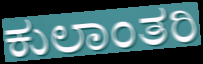
ಕುಲಾಂತರಿ